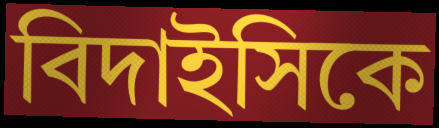
বিদাইসিকে